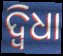
ଦ୍ବିଧା